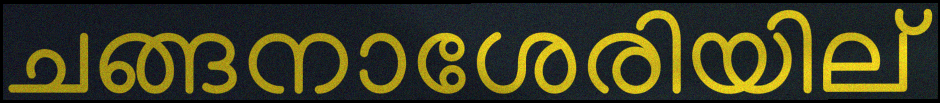
ചങ്ങനാശേരിയില്